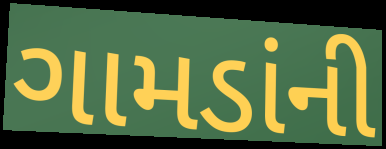
ગામડાંની